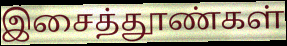
இசைத்தூண்கள்